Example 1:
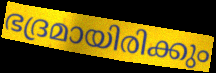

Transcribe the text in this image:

ഭദ്രമായിരിക്കും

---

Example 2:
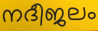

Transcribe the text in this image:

നദീജലം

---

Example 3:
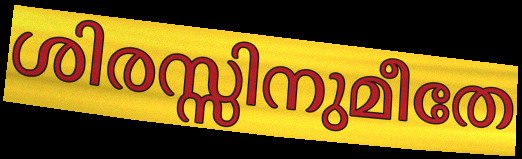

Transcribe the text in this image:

ശിരസ്സിനുമീതേ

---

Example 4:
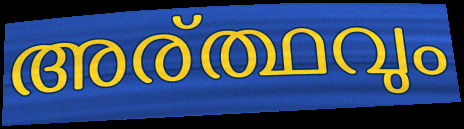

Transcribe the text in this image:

അര്ത്ഥവും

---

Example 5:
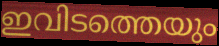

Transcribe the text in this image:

ഇവിടത്തെയും